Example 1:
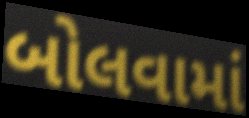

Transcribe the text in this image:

બોલવામાં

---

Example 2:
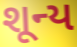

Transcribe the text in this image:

શૂન્ય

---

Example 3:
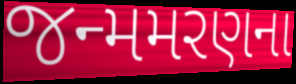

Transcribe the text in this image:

જન્મમરણના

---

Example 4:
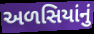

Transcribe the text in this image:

અળસિયાંનું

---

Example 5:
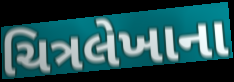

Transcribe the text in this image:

ચિત્રલેખાના